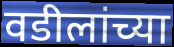
वडीलांच्या